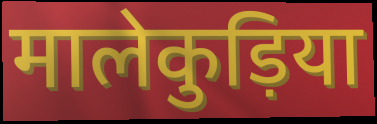
मालेकुड़िया